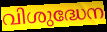
വിശുദ്ധേന